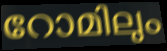
റോമിലും